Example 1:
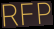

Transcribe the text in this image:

RFP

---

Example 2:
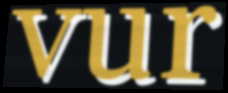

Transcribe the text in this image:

vur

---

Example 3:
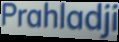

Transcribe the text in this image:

Prahladji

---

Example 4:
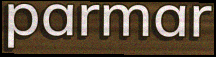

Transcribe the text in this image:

parmar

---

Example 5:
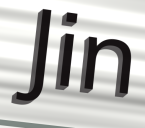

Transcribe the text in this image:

Jin